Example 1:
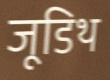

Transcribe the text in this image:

जूडिथ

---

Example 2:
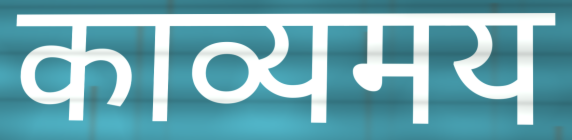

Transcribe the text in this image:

काव्यमय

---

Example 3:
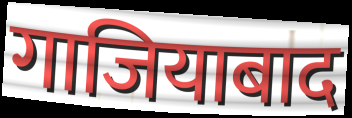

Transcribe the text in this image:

गाजियाबाद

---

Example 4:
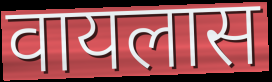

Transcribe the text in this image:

वायलास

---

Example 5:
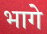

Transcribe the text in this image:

भागे